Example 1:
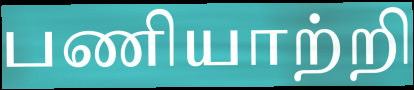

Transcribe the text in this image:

பணியாற்றி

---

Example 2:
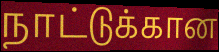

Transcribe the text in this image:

நாட்டுக்கான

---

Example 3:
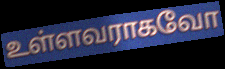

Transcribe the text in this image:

உள்ளவராகவோ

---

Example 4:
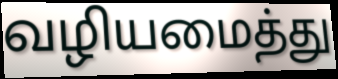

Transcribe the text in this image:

வழியமைத்து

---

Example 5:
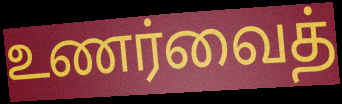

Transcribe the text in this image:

உணர்வைத்